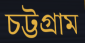
চট্টগ্রাম